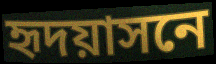
হৃদয়াসনে